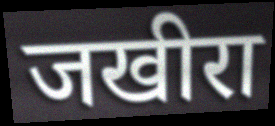
जखीरा